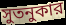
সুতনুকার